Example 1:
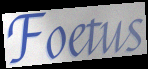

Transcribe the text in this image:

Foetus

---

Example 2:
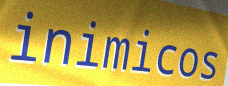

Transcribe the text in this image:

inimicos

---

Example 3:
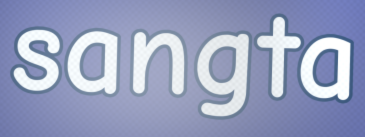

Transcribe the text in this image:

sangta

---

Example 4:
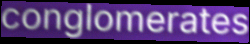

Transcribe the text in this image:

conglomerates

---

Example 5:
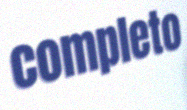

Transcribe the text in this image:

completo